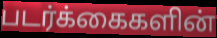
படர்க்கைகளின்